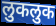
लुकलुक